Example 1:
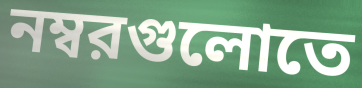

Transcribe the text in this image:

নম্বরগুলোতে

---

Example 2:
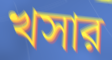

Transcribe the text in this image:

খসার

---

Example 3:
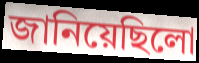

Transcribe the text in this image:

জানিয়েছিলো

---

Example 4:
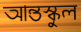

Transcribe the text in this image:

আন্তস্কুল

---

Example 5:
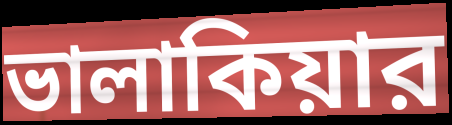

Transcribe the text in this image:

ভালাকিয়ার